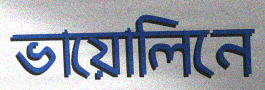
ভায়োলিনে